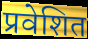
प्रवेशित